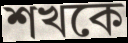
শখকে